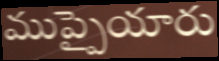
ముప్పైయారు